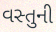
વસ્તુની